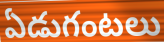
ఏడుగంటలు